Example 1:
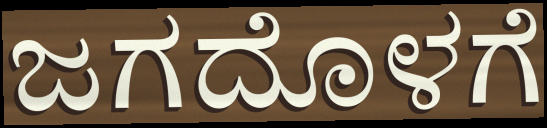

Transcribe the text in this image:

ಜಗದೊಳಗೆ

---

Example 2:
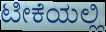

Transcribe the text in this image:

ಟೀಕೆಯಲ್ಲಿ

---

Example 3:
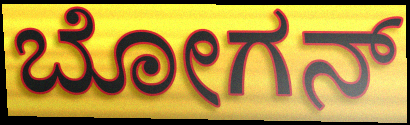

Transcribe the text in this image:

ಬೋಗನ್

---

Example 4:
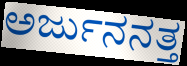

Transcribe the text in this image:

ಅರ್ಜುನನತ್ತ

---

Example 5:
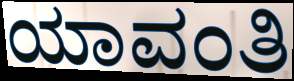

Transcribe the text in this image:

ಯಾವಂತಿ